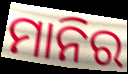
ମାନିର